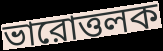
ভারোত্তলক